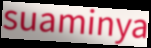
suaminya